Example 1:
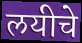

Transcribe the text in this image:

लयीचे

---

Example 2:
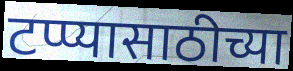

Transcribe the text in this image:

टप्प्यासाठीच्या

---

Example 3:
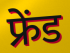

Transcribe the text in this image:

फ्रेंड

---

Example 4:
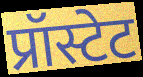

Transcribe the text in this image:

प्रॉस्टेट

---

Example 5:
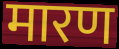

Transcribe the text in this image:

मारण